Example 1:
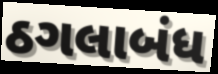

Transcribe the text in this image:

ઠગલાબંધ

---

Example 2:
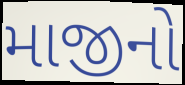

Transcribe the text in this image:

માજીનો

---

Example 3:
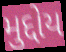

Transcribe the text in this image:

મુદ્દોય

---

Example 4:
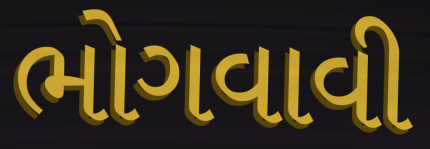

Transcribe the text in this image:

ભોગવાવી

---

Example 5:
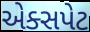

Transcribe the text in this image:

એક્સપેટ